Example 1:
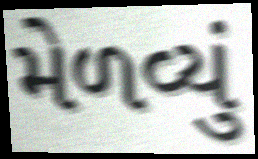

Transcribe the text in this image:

મેળવ્યું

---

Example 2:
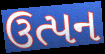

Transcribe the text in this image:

ઉત્પન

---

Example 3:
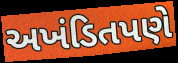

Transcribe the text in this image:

અખંડિતપણે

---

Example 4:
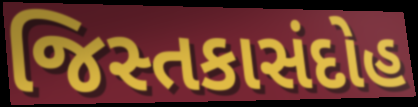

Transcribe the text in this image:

જિસ્તકાસંદોહ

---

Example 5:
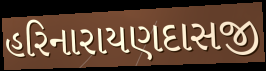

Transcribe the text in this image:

હરિનારાયણદાસજી